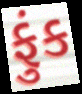
ફુંક